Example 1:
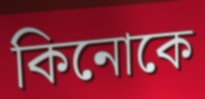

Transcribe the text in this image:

কিনোকে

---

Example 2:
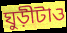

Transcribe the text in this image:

ঘুড়ীটাও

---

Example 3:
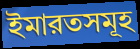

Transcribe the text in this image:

ইমারতসমূহ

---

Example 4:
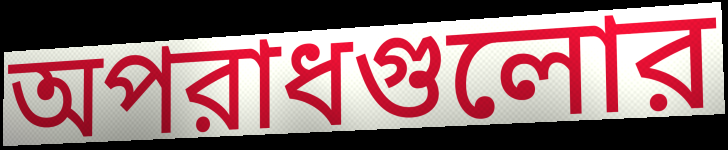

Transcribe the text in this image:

অপরাধগুলোর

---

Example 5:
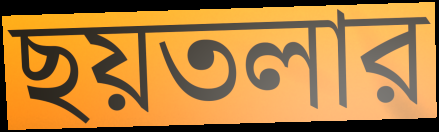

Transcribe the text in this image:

ছয়তলার